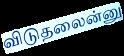
விடுதலைன்னு